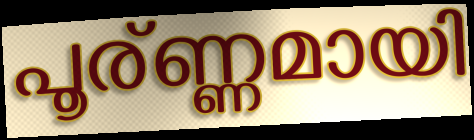
പൂര്ണ്ണമായി